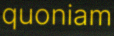
quoniam